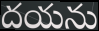
దయను